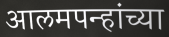
आलमपन्हांच्या